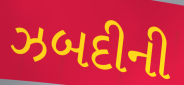
ઝબદીની